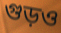
গুড়ও